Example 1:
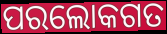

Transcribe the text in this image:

ପରଲୋକଗତ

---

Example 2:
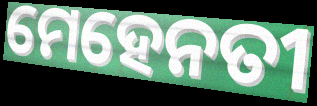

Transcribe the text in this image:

ମେହେନତୀ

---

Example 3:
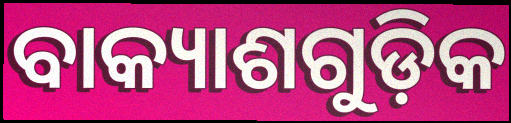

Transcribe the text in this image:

ବାକ୍ୟାଶଗୁଡ଼ିକ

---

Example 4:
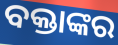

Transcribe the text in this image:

ବକ୍ତାଙ୍କର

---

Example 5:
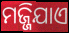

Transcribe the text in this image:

ମଜ୍ଜିଯାଏ